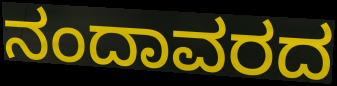
ನಂದಾವರದ